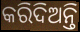
କରିଦିଅନ୍ତି